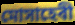
মোসাহেবী